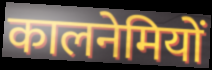
कालनेमियों